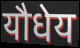
यौधेय